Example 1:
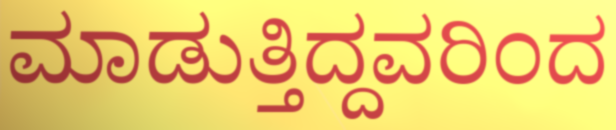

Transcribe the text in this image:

ಮಾಡುತ್ತಿದ್ದವರಿಂದ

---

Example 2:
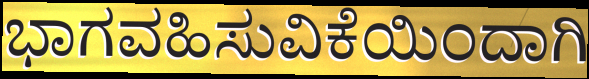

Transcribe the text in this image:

ಭಾಗವಹಿಸುವಿಕೆಯಿಂದಾಗಿ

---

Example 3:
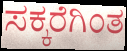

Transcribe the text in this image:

ಸಕ್ಕರೆಗಿಂತ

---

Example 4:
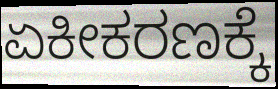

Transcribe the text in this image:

ಏಕೀಕರಣಕ್ಕೆ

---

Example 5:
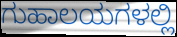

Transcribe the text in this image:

ಗುಹಾಲಯಗಳಲ್ಲಿ